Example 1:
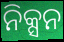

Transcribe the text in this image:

ନିକ୍ସନ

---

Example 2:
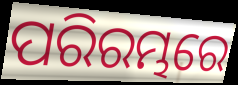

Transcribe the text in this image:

ପରିରମ୍ଭରେ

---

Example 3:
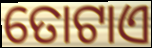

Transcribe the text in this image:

ତୋଟାଏ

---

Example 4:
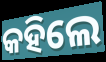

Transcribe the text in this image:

କହିଲେ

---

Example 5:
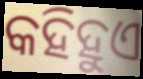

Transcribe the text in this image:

କହିହୁଏ